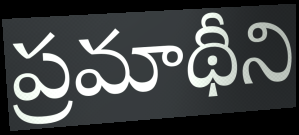
ప్రమాథీని